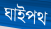
ঘাইপথ